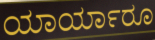
ಯಾರ್ಯಾರೂ